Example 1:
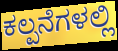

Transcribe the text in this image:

ಕಲ್ಪನೆಗಳಲ್ಲಿ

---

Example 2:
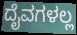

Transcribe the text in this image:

ದೈವಗಳಲ್ಲ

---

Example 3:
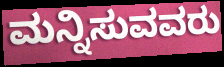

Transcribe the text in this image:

ಮನ್ನಿಸುವವರು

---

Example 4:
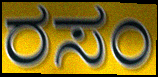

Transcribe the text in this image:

ರಸಂ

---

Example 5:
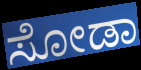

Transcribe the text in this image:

ಸೋಡಾ